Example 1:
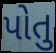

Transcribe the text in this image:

પોતુ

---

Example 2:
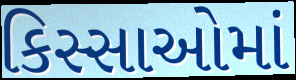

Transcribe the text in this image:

કિસ્સાઓમાં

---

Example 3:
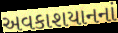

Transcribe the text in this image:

અવકાશયાનનાં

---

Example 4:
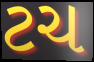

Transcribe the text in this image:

ટચ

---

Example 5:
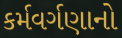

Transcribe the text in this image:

કર્મવર્ગણાનો